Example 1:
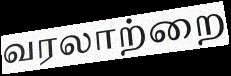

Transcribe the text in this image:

வரலாற்றை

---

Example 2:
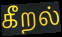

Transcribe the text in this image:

கீறல்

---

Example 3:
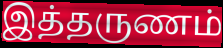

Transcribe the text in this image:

இத்தருணம்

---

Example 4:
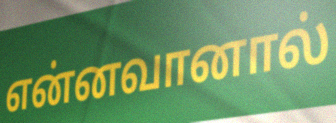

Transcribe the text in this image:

என்னவானால்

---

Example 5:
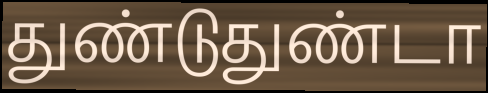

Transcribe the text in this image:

துண்டுதுண்டா